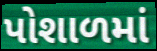
પોશાળમાં